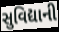
સુવિદ્યાની